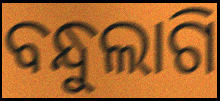
ବନ୍ଧୁଲାଗି